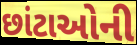
છાંટાઓની